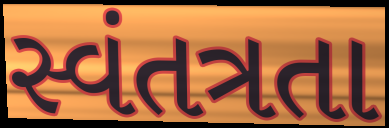
સ્વંતત્રતા